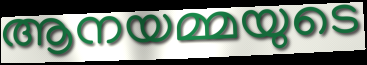
ആനയമ്മയുടെ